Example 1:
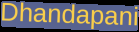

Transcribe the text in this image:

Dhandapani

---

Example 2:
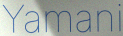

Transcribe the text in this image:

Yamani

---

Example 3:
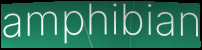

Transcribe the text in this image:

amphibian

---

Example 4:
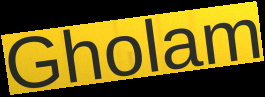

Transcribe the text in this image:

Gholam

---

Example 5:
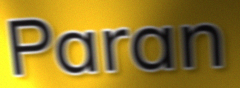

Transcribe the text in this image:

Paran